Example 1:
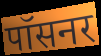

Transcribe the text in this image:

पॉसनर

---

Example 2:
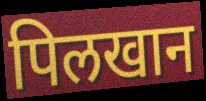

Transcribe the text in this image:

पिलखान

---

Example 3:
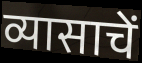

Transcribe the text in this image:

व्यासाचें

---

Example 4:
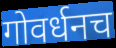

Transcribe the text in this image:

गोवर्धनच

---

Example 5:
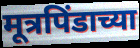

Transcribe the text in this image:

मूत्रपिंडाच्या